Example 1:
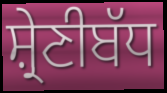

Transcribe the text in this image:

ਸ਼੍ਰੇਣੀਬੱਧ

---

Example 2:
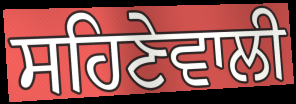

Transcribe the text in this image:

ਸਹਿਣੇਵਾਲੀ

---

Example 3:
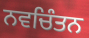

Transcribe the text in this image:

ਨਵਚਿੰਤਨ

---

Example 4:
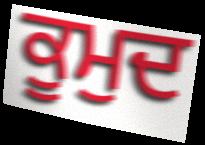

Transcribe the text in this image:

ਕੂਮੁਦ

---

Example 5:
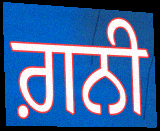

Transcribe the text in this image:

ਗ਼ਨੀ